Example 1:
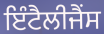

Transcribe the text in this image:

ਇੰਟੈਲੀਜੈਂਸ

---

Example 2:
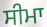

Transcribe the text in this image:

ਸੀਮਾ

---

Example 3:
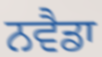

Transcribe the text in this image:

ਨਵੈਡਾ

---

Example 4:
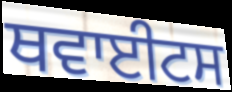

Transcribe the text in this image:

ਥਵਾਈਟਸ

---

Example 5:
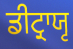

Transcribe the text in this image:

ਡੀਟ੍ਰਾਯ੍ਟ